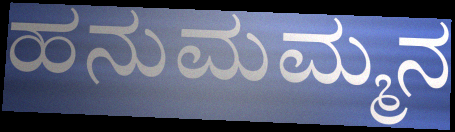
ಹನುಮಮ್ಮನ